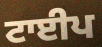
ਟਾਈਪ